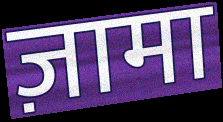
ज़ामा